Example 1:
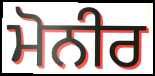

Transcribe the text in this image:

ਮੋਨੀਰ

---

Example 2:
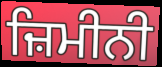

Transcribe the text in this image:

ਜ਼ਿਮੀਨੀ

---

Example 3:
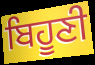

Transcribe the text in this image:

ਬਿਹੂਣੀ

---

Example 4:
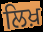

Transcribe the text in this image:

ਲਿਖ਼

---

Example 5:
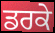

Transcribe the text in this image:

ਡਰਕੇ